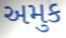
અમુક